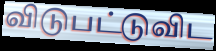
விடுபட்டுவிட